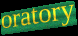
oratory